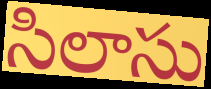
సిలాసు